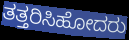
ತತ್ತರಿಸಿಹೋದರು